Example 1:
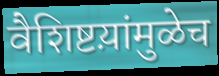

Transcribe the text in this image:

वैशिष्टय़ांमुळेच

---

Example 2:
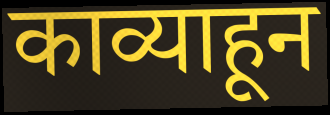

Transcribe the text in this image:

काव्याहून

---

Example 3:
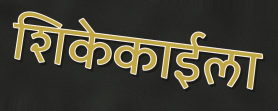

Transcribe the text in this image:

शिकेकाईला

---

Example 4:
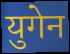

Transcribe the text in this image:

युगेन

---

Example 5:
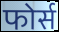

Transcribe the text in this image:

फोर्स